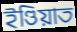
ইণ্ডিয়াত